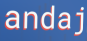
andaj